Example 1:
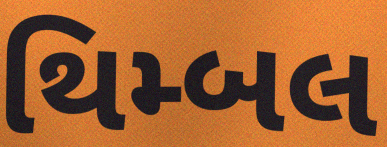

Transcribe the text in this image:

થિમ્બલ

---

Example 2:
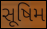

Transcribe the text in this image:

સૂષિમ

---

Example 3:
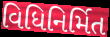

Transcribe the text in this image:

વિધિનિર્મિત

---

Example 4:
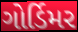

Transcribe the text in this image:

ગોર્ડિમર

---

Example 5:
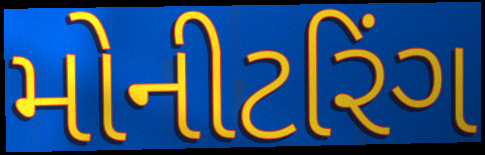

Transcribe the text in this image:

મોનીટરિંગ